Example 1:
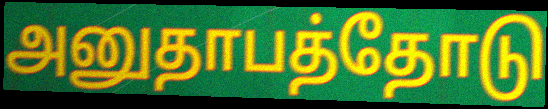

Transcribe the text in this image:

அனுதாபத்தோடு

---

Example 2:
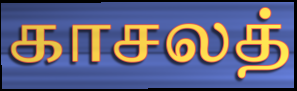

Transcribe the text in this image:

காசலத்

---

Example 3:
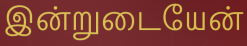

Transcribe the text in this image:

இன்றுடையேன்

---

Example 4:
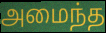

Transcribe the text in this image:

அமைந்த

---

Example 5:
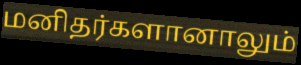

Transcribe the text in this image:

மனிதர்களானாலும்